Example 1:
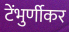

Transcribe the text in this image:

टेंभुर्णीकर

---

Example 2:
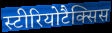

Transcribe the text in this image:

स्टीरियोटैक्सिस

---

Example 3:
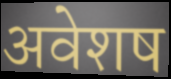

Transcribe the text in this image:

अवेशष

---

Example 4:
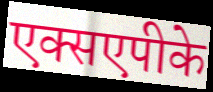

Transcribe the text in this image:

एक्सएपीके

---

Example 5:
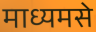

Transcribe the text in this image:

माध्यमसे